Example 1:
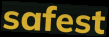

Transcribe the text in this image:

safest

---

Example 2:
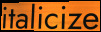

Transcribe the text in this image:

italicize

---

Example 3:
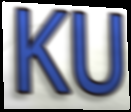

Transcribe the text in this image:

KU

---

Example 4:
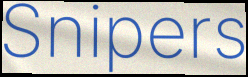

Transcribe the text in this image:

Snipers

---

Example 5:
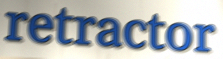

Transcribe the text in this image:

retractor